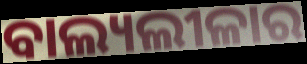
ବାଲ୍ୟଲୀଳାର